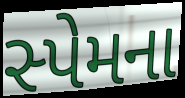
સ્પેમના